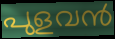
പുളവൻ